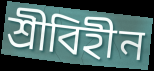
শ্রীবিহীন